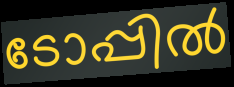
ടോപ്പിൽ